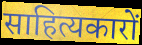
साहित्यकारों